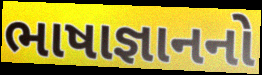
ભાષાજ્ઞાનનો